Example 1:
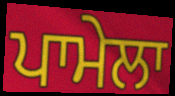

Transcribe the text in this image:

ਪਾਮੇਲਾ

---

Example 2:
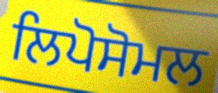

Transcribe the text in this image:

ਲਿਪੋਸੋਮਲ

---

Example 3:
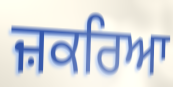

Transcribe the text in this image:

ਜ਼ਕਰਿਆ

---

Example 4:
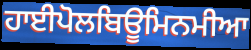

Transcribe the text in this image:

ਹਾਈਪੋਲਬਿਊਮਿਨਮੀਆ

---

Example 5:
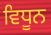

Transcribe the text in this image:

ਵਿਧੂਨ